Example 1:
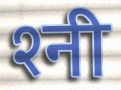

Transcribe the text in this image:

श्नी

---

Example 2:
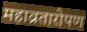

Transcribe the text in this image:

महाव्रतारोपण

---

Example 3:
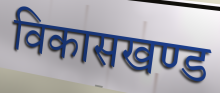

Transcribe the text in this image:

विकासखण्ड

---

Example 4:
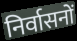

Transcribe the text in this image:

निर्वासनों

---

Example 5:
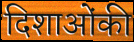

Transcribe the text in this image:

दिशाओंकी